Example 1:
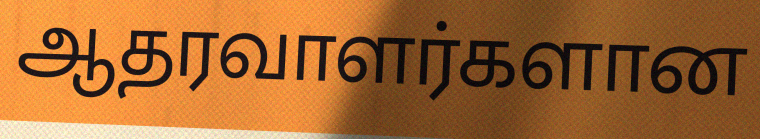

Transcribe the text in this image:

ஆதரவாளர்களான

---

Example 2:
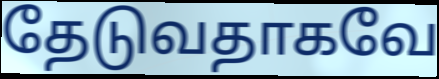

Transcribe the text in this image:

தேடுவதாகவே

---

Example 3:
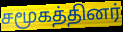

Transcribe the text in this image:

சமூகத்தினர்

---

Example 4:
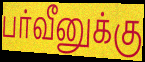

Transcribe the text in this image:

பர்வீனுக்கு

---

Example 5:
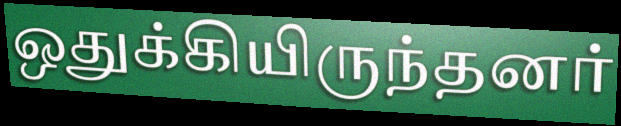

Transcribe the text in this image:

ஒதுக்கியிருந்தனர்